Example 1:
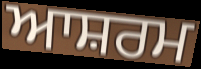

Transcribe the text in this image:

ਆਸ਼ਰਮ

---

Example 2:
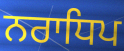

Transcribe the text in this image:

ਨਰਾਧਿਪ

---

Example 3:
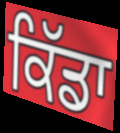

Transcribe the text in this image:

ਕਿੱਡਾ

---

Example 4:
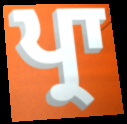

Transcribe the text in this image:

ਪ੍ਰਾ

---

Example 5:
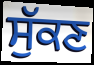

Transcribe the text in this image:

ਸੁੱਕਣ